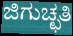
ಜಿಗುಚ್ಛತಿ